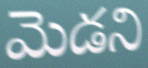
మెడని